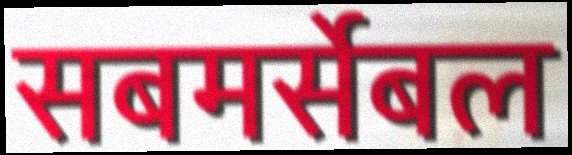
सबमर्सेबल